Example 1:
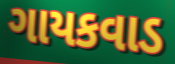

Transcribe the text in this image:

ગાયકવાડ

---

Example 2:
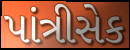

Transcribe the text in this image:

પાંત્રીસેક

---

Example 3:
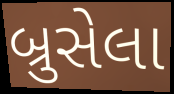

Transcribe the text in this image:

બ્રુસેલા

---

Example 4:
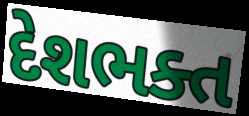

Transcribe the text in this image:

દેશભક્ત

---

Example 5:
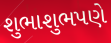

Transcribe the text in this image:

શુભાશુભપણે